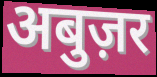
अबुज़र